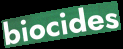
biocides